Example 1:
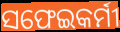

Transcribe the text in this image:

ସଫେଇକର୍ମୀ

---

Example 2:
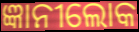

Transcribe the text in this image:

ଜ୍ଞାନୀଲୋକ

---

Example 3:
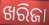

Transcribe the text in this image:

ଖରିଜା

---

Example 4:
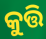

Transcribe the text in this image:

କୁତ୍ତି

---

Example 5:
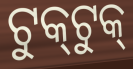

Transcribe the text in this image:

ଟୁକ୍‌ଟୁକ୍